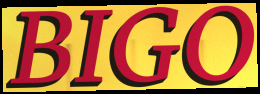
BIGO